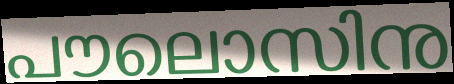
പൗലൊസിനു